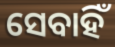
ସେବାହିଁ